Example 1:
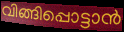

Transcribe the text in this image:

വിങ്ങിപ്പൊട്ടാൻ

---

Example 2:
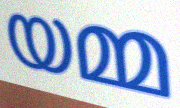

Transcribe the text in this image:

യമ്മ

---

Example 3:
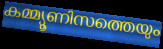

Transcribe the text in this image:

കമ്മ്യൂണിസത്തെയും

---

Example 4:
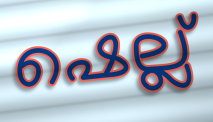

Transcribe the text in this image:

ഷെല്ല്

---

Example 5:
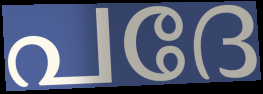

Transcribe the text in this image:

പദേ